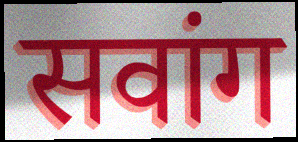
सवांग